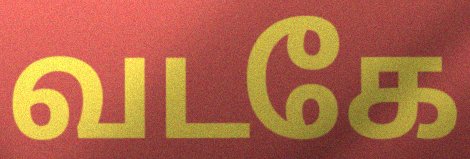
வடகே